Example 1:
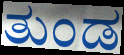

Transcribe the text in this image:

ತುಂಡ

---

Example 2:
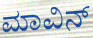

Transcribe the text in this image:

ಮಾವಿನ್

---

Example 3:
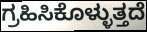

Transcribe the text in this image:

ಗ್ರಹಿಸಿಕೊಳ್ಳುತ್ತದೆ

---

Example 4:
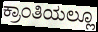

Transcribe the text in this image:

ಕ್ರಾಂತಿಯಲ್ಲೂ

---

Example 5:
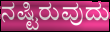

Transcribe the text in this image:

ನಷ್ಟಿರುವುದು